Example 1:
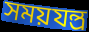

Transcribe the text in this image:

সময়যন্ত্র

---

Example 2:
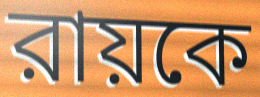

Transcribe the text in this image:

রায়কে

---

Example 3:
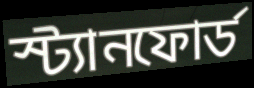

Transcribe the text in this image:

স্ট্যানফোর্ড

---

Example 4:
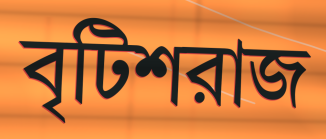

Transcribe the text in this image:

বৃটিশরাজ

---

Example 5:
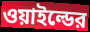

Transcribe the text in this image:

ওয়াইল্ডের